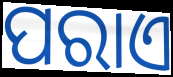
ପରାଏ